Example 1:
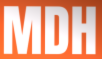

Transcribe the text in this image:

MDH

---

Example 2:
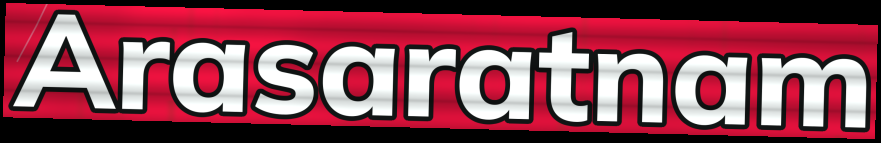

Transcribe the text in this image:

Arasaratnam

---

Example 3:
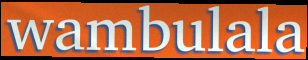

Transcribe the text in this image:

wambulala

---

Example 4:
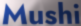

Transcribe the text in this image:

Mushi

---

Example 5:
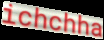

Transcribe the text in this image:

ichchha